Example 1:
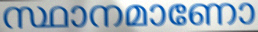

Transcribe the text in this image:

സ്ഥാനമാണോ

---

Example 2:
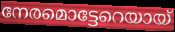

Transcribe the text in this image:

നേരമൊട്ടേറെയായ്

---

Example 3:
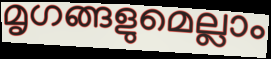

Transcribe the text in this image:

മൃഗങ്ങളുമെല്ലാം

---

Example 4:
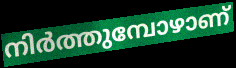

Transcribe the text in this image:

നിർത്തുമ്പോഴാണ്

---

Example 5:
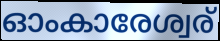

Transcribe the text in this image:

ഓംകാരേശ്വര്